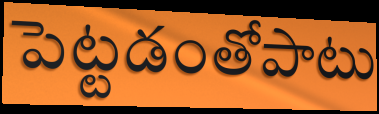
పెట్టడంతోపాటు